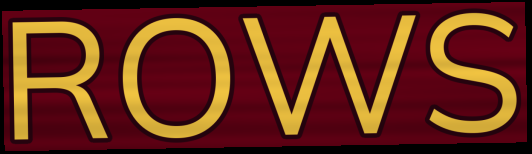
ROWS